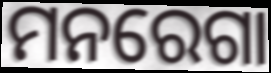
ମନରେଗା